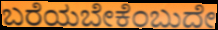
ಬರೆಯಬೇಕೆಂಬುದೇ